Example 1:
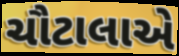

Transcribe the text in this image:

ચૌટાલાએ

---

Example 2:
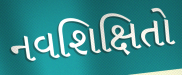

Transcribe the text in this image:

નવશિક્ષિતો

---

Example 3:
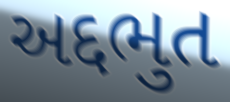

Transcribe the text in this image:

અદ્દભુત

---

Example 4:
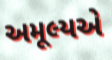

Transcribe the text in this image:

અમૂલ્યએ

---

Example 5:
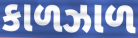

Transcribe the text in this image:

કાળઝાળ